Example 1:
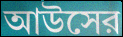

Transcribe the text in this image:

আউসের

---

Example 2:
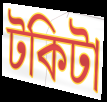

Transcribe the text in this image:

টকিটা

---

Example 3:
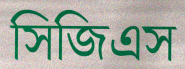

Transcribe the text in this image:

সিজিএস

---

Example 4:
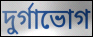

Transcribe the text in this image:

দুর্গাভোগ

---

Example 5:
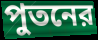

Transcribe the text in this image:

পুতনের